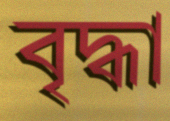
বৃদ্ধা